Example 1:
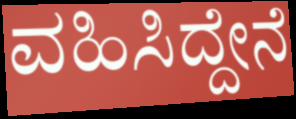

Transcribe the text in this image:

ವಹಿಸಿದ್ದೇನೆ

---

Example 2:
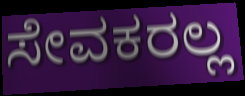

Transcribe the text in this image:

ಸೇವಕರಲ್ಲ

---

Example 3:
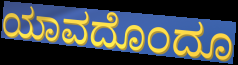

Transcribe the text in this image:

ಯಾವದೊಂದೂ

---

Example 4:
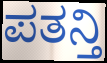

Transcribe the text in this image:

ಪತನ್ತಿ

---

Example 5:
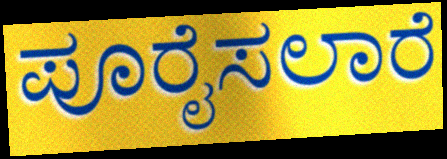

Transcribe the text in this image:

ಪೂರೈಸಲಾರೆ